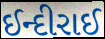
ઈન્દીરાઈ